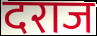
दराज